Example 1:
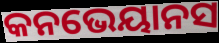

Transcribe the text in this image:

କନଭେୟାନସ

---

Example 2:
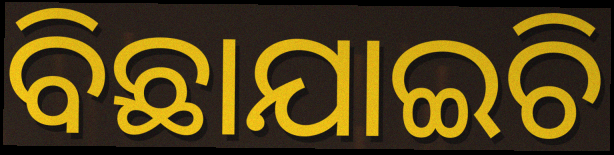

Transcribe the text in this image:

ବିଛାଯାଇଚି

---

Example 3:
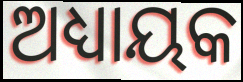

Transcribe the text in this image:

ଅଧ୍ୟାୟକ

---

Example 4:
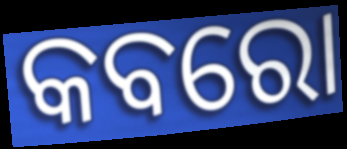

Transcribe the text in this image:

କବରୋ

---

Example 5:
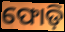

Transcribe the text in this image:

ଫୋଡ଼ି